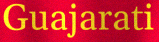
Guajarati